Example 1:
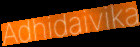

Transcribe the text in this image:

Adhidaivika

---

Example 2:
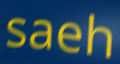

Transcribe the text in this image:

saeh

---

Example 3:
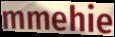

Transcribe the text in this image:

mmehie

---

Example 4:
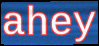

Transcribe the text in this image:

ahey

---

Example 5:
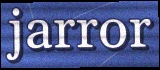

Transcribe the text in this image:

jarror